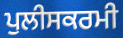
ਪੁਲੀਸਕਰਮੀ